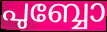
പുബ്ബോ